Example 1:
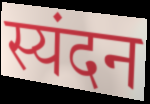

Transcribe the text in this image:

स्यंदन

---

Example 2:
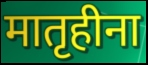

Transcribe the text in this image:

मातृहीना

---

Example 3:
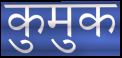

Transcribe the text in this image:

कुमुक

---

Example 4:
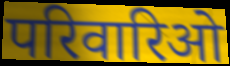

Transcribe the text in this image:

परिवारिओ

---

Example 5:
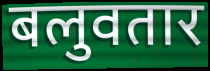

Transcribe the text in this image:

बलुवतार